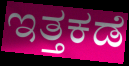
ಇತ್ತಕಡೆ